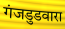
गंजडुडवारा